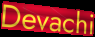
Devachi